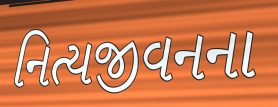
નિત્યજીવનના